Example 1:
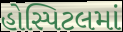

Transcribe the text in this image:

હોસ્પિટલમાં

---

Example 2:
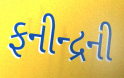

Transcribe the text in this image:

ફનીન્દ્રની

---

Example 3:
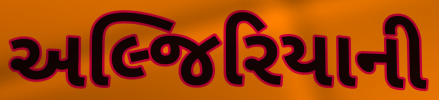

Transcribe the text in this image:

અલ્જિરિયાની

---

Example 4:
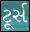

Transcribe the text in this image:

ટૂર્સ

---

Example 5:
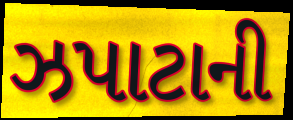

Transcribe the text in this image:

ઝપાટાની